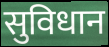
सुविधान